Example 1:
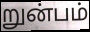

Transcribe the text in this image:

றுன்பம்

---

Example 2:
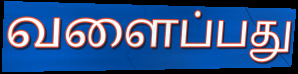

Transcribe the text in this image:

வளைப்பது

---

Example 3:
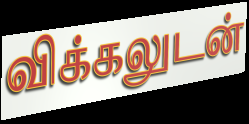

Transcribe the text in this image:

விக்கலுடன்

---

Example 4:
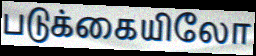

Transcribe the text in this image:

படுக்கையிலோ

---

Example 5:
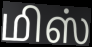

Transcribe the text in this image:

மிஸ்